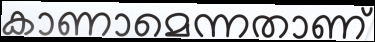
കാണാമെന്നതാണ്